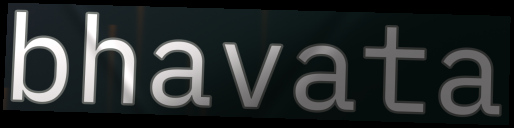
bhavata